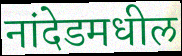
नांदेडमधील